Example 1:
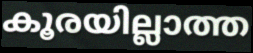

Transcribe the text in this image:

കൂരയില്ലാത്ത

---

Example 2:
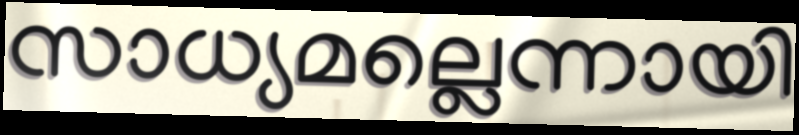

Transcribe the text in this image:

സാധ്യമല്ലെന്നായി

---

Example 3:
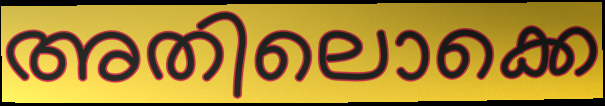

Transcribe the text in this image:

അതിലൊക്കെ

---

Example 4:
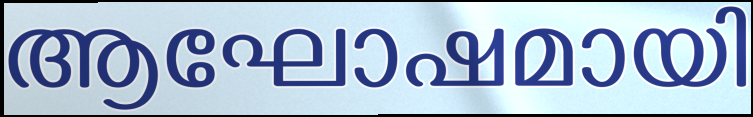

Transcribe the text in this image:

ആഘോഷമായി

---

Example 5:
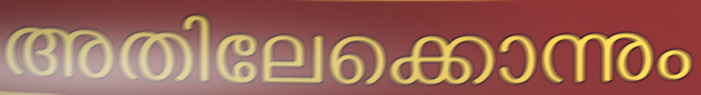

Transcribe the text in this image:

അതിലേക്കൊന്നും